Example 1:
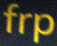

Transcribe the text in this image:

frp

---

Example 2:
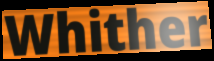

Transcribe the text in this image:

Whither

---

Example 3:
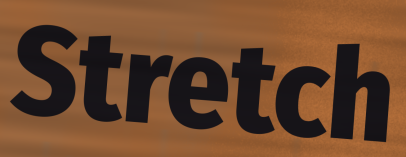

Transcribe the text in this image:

Stretch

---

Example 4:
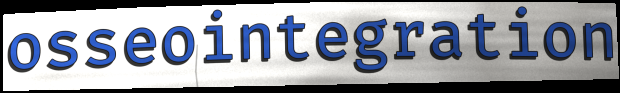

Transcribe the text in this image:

osseointegration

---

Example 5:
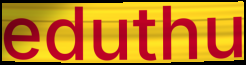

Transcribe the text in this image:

eduthu